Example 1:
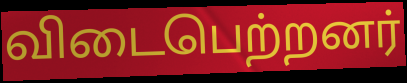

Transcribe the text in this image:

விடைபெற்றனர்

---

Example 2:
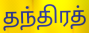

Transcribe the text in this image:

தந்திரத்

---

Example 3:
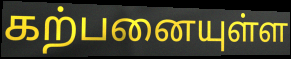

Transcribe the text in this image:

கற்பனையுள்ள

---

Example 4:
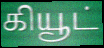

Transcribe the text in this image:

கியூட்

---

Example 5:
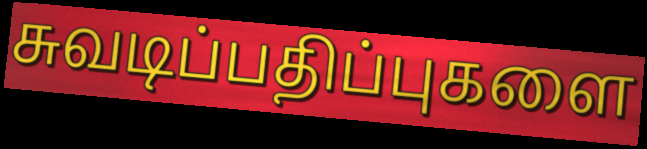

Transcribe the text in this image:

சுவடிப்பதிப்புகளை